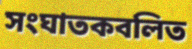
সংঘাতকবলিত